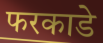
फरकाडे